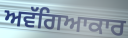
ਅਵੱਗਿਆਕਾਰ